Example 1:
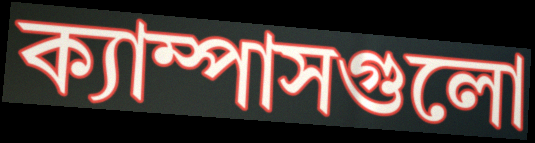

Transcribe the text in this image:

ক্যাম্পাসগুলো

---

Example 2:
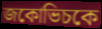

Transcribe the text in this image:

জকোভিচকে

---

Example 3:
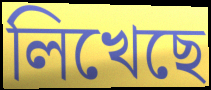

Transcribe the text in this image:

লিখেছে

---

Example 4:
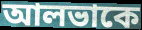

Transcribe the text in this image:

আলভাকে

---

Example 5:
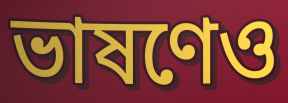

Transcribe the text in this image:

ভাষণেও